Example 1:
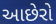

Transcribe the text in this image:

આછેરો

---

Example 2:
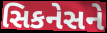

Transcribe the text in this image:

સિકનેસને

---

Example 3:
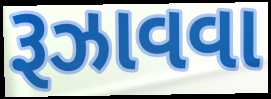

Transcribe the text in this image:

રૂઝાવવા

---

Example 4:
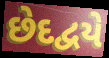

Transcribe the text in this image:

છેદદ્વયે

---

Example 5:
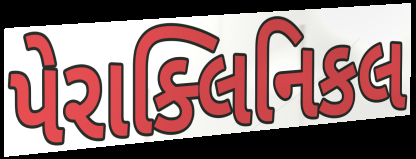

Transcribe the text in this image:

પેરાક્લિનિકલ